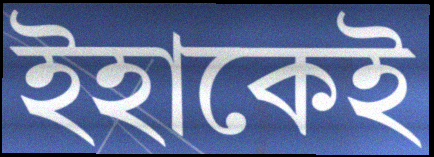
ইহাকেই